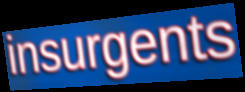
insurgents